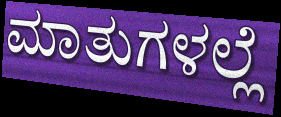
ಮಾತುಗಳಲ್ಲೆ